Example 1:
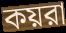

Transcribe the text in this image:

কয়রা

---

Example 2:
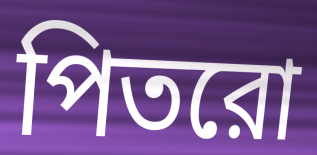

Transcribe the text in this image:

পিতরো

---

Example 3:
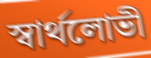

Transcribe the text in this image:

স্বার্থলোভী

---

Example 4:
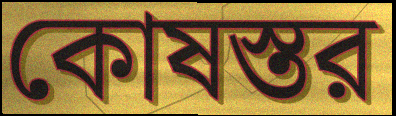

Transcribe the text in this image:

কোষস্তর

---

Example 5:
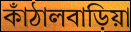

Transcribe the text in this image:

কাঁঠালবাড়িয়া